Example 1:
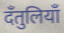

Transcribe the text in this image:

दँतुलियाँ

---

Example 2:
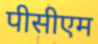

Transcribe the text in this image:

पीसीएम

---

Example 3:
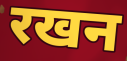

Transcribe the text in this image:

रखन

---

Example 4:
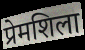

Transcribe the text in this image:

प्रेमशिला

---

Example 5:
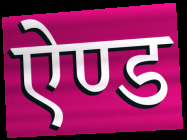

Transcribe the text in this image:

ऐण्ड